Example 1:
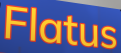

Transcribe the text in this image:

Flatus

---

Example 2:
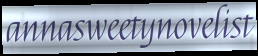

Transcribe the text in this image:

annasweetynovelist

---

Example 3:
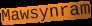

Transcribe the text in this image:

Mawsynram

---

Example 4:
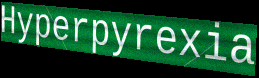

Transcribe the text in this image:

Hyperpyrexia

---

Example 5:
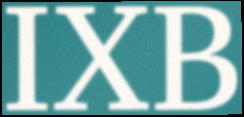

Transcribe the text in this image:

IXB